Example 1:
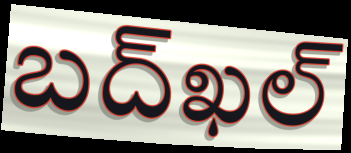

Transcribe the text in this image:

బద్‌ఖల్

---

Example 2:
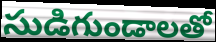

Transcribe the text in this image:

సుడిగుండాలతో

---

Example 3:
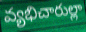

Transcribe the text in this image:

వ్యభిచారుల్లా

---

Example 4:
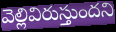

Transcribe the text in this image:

వెల్లివిరుస్తుందని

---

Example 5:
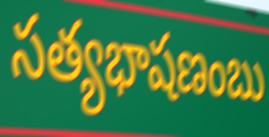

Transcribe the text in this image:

సత్యభాషణంబు